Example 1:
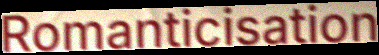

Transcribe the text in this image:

Romanticisation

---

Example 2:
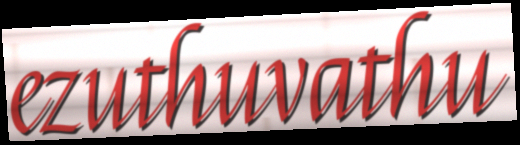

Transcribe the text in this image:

ezuthuvathu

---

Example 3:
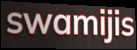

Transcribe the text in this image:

swamijis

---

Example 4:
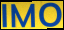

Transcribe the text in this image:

IMO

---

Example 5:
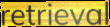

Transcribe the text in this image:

retrieval